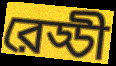
রেড্ডী